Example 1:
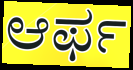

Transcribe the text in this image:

ಆರ್ಫ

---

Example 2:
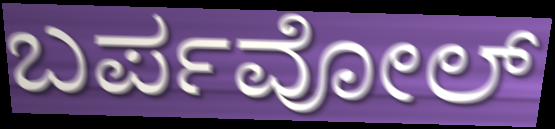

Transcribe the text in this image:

ಬರ್ಪವೋಲ್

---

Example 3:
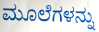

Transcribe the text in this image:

ಮೂಲೆಗಳನ್ನು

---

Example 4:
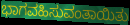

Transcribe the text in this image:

ಭಾಗವಹಿಸುವಂತಾಯಿತು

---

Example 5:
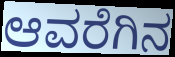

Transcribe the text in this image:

ಆವರೆಗಿನ